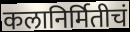
कलानिर्मितीचं